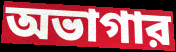
অভাগার